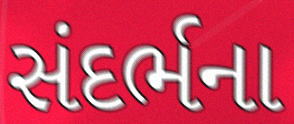
સંદર્ભના